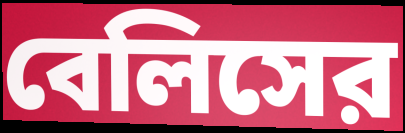
বেলিসের